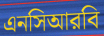
এনসিআরবি